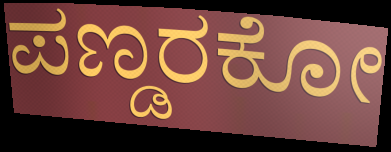
ಪಣ್ಡರಕೋ